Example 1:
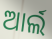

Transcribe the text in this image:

ଆର୍ଲ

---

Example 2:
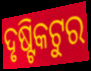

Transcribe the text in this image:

ଦୃଷ୍ଟିକଟୁର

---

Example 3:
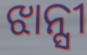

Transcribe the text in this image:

ଝାନ୍ସୀ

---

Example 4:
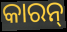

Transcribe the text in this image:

କାରନ୍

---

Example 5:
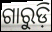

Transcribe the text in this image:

ଗାରୁଡ଼ି